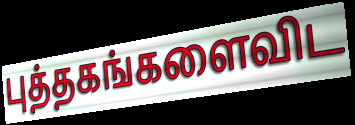
புத்தகங்களைவிட